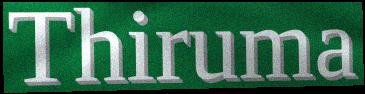
Thiruma